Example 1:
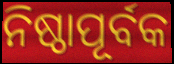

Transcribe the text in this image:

ନିଷ୍ଠାପୂର୍ବକ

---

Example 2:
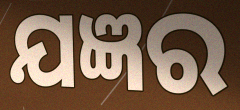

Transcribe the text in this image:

ଯଜ୍ଞର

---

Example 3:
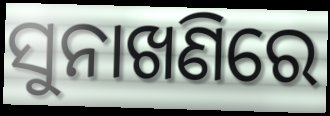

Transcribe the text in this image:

ସୁନାଖଣିରେ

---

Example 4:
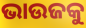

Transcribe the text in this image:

ଭାଉଜକୁ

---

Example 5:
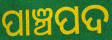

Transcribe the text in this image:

ପାଞ୍ଚପଦ